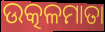
ଉତ୍କଳମାତା